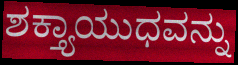
ಶಕ್ತ್ಯಾಯುಧವನ್ನು